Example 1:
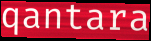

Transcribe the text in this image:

qantara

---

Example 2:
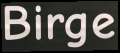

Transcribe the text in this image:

Birge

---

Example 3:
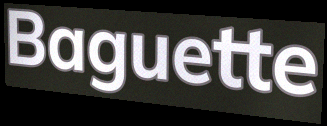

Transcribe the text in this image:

Baguette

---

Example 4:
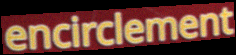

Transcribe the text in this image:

encirclement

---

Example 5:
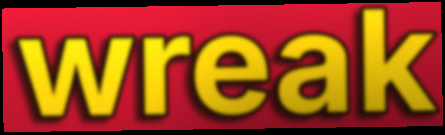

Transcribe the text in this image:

wreak